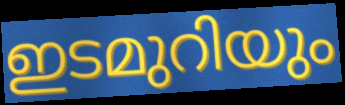
ഇടമുറിയും